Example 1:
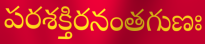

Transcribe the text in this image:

పరశక్తిరనంతగుణః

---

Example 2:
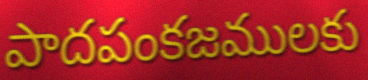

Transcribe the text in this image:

పాదపంకజములకు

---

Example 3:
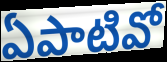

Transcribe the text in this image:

ఏపాటివో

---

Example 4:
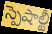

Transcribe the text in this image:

స్పెషాల్టీ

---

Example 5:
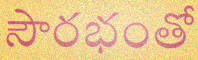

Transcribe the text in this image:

సౌరభంతో